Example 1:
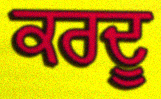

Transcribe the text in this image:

ਕਰਦੂ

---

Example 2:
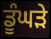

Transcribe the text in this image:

ਡੂੰਘੜੇ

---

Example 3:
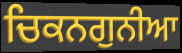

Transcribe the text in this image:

ਚਿਕਨਗੁਨੀਆ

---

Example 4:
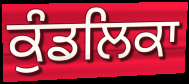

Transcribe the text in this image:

ਕੁੰਡਲਿਕਾ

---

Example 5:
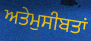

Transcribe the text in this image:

ਅਤੇਮੁਸੀਬਤਾਂ